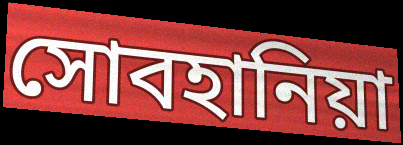
সোবহানিয়া